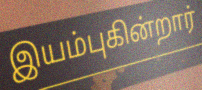
இயம்புகின்றார்